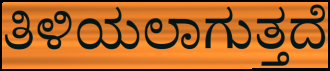
ತಿಳಿಯಲಾಗುತ್ತದೆ